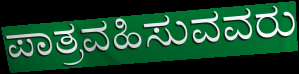
ಪಾತ್ರವಹಿಸುವವರು